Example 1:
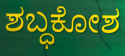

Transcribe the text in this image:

ಶಬ್ಧಕೋಶ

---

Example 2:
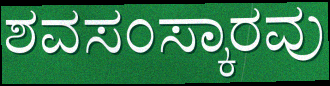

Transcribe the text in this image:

ಶವಸಂಸ್ಕಾರವು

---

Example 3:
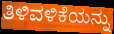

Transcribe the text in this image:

ತಿಳಿವಳಿಕೆಯನ್ನು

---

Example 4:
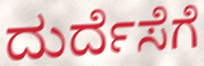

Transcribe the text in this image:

ದುರ್ದೆಸೆಗೆ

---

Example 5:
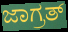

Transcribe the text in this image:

ಜಾಗ್ರತ್